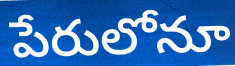
పేరులోనూ